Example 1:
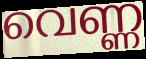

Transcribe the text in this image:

വെണ്ണ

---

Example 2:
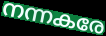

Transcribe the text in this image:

നന്നകരേ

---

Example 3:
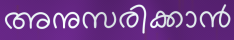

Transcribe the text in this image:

അനുസരിക്കാൻ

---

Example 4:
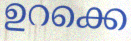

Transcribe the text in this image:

ഉറക്കെ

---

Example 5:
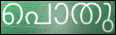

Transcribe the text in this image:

പൊതു